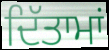
ਦਿੱਤਾਮਾਂ